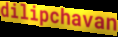
dilipchavan